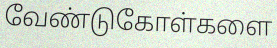
வேண்டுகோள்களை